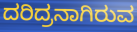
ದರಿದ್ರನಾಗಿರುವ